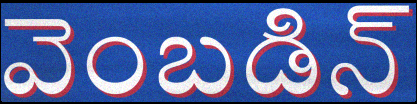
వెంబడిన్